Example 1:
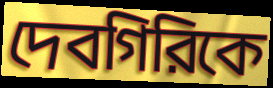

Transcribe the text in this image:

দেবগিরিকে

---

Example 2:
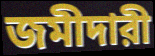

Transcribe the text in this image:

জমীদারী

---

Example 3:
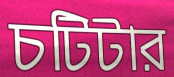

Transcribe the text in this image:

চটিটার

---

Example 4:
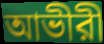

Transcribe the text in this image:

আভীরী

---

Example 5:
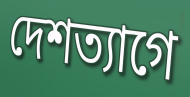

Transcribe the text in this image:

দেশত্যাগে